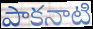
పాకనాటి